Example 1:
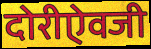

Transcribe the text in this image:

दोरीऐवजी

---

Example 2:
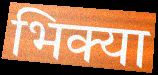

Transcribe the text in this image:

भिक्या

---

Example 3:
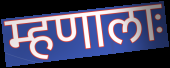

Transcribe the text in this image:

म्हणालाः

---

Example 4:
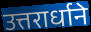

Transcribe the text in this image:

उत्तरार्धाने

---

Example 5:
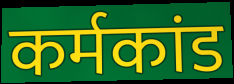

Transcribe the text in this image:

कर्मकांड